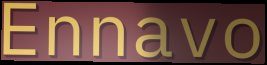
Ennavo